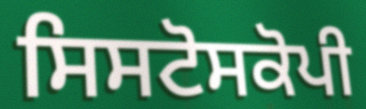
ਸਿਸਟੋਸਕੋਪੀ